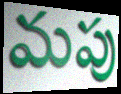
మపు